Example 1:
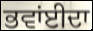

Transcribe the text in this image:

ਭਵਾਂਈਦਾ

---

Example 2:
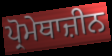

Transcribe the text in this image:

ਪ੍ਰੋਮੇਥਾਜ਼ੀਨ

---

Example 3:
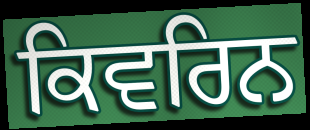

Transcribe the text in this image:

ਕਿਵਰਿਨ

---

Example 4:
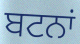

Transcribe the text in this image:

ਬਟਨਾਂ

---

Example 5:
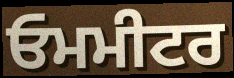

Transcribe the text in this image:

ਓਮਮੀਟਰ